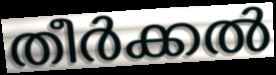
തീർക്കൽ